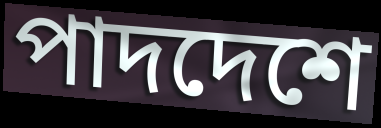
পাদদেশে